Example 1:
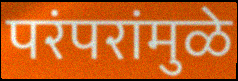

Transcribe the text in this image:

परंपरांमुळे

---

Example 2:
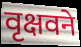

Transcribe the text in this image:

वृक्षवने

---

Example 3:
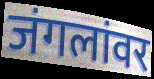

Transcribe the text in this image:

जंगलांवर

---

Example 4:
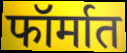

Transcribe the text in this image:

फॉर्मात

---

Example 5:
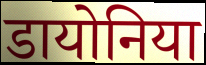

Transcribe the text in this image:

डायोनिया